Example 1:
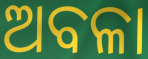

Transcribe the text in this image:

ଅବଳା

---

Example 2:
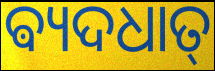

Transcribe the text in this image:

ଵ୍ୟଦଧାତ୍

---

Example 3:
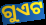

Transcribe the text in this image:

ଗୁଏଟ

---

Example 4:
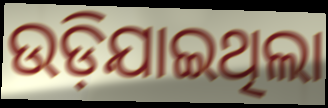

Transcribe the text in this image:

ଉଡ଼ିଯାଇଥିଲା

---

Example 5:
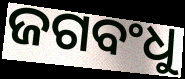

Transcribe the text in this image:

ଜଗବଂଧୁ